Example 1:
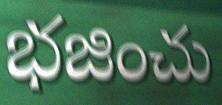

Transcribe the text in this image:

భజించు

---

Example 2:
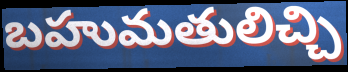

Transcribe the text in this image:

బహుమతులిచ్చి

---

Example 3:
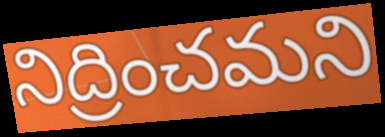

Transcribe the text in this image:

నిద్రించమని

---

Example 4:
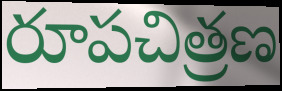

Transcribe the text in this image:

రూపచిత్రణ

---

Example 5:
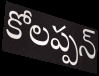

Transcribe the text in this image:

కోలప్పన్